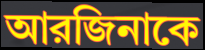
আরজিনাকে